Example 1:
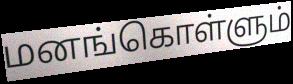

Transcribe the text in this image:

மனங்கொள்ளும்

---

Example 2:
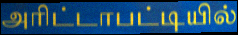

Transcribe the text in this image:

அரிட்டாபட்டியில்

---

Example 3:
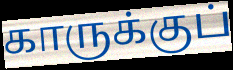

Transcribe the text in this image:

காருக்குப்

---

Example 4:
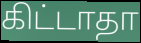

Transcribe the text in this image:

கிட்டாதா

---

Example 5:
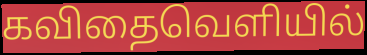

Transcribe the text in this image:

கவிதைவெளியில்